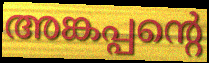
അങ്കപ്പന്റെ